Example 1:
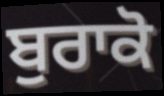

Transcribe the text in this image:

ਬੁਰਾਕੋ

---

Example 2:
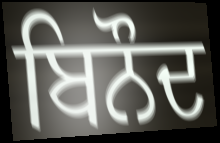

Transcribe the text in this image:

ਬਿਨੌਦ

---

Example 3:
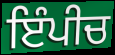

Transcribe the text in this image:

ਇੰਪੀਚ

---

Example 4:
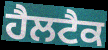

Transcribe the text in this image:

ਹੈਲਟੈਕ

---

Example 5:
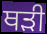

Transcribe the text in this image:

ਥੜੀ